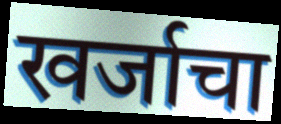
खर्जाचा